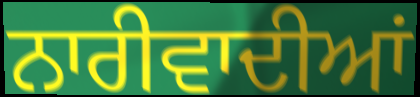
ਨਾਰੀਵਾਦੀਆਂ